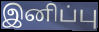
இனிப்பு